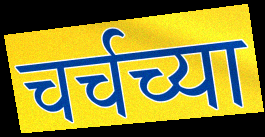
चर्चच्या